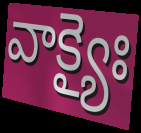
వాక్యైః